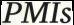
PMIs